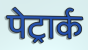
पेट्रार्क